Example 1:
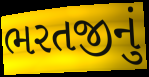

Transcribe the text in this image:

ભરતજીનું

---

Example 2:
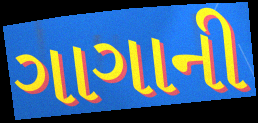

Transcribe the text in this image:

ગાગાની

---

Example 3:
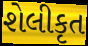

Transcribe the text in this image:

શેલીકૃત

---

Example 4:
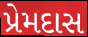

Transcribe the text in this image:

પ્રેમદાસ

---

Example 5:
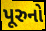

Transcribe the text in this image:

પૂરુનો